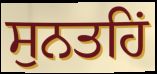
ਸੁਨਤਹਿਂ